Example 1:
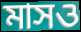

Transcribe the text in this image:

মাসও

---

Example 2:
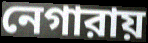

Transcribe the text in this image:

নেগারায়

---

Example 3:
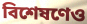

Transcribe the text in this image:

বিশেষণেও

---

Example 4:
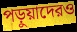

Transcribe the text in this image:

পড়ুয়াদেরও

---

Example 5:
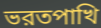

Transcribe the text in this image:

ভরতপাখি